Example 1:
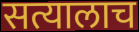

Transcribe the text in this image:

सत्यालाच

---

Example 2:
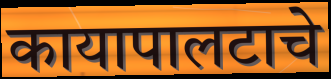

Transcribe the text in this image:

कायापालटाचे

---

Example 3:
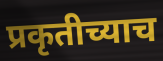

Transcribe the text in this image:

प्रकृतीच्याच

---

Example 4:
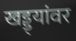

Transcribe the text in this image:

खड्ड्यांवर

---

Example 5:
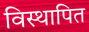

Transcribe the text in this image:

विस्थापित